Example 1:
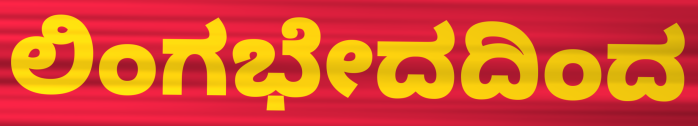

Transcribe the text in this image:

ಲಿಂಗಭೇದದಿಂದ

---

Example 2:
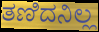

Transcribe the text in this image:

ತಣಿದನಿಲ್ಲ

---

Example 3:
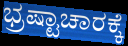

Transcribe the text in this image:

ಭ್ರಷ್ಟಾಚಾರಕ್ಕೆ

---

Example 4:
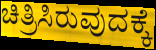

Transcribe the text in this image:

ಚಿತ್ರಿಸಿರುವುದಕ್ಕೆ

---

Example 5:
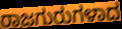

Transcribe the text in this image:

ರಾಜಗುರುಗಳಾದ